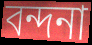
বন্দনা